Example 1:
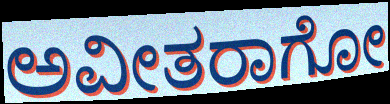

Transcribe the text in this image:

ಅವೀತರಾಗೋ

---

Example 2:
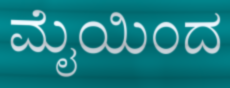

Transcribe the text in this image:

ಮೈಯಿಂದ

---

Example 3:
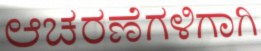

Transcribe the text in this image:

ಆಚರಣೆಗಳಿಗಾಗಿ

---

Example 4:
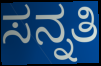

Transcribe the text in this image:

ಸನ್ನತಿ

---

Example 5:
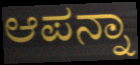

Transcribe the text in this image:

ಆಪನ್ನಾ